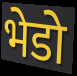
भेडो